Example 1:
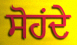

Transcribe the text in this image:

ਸੋਹਂਦੇ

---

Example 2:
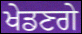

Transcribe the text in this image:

ਖੇਡਣਗੇ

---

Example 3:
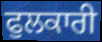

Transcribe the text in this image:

ਫੁਲਕਾਰੀ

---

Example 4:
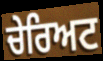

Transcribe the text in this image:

ਚੇਰਿਅਟ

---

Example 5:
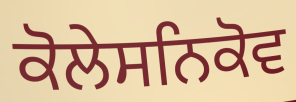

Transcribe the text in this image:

ਕੋਲੇਸਨਿਕੋਵ